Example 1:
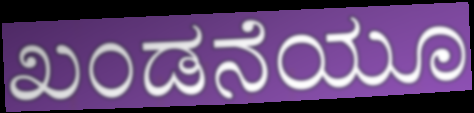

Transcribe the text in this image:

ಖಂಡನೆಯೂ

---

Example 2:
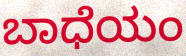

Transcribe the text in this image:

ಬಾಧೆಯಂ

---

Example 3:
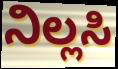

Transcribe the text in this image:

ನಿಲ್ಲಸಿ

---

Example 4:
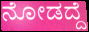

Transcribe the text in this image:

ನೋಡದ್ದೆ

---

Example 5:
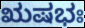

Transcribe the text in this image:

ಋಷಭಃ